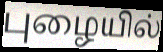
புழையில்